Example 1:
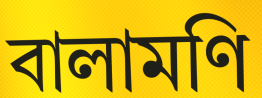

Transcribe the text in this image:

বালামণি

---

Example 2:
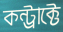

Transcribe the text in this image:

কন্ট্রাক্টে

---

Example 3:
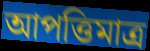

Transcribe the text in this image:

আপত্তিমাত্র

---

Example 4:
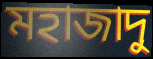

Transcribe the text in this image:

মহাজাদু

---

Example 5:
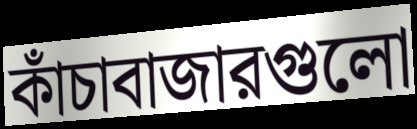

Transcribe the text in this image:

কাঁচাবাজারগুলো